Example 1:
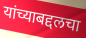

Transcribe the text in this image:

यांच्याबद्दलचा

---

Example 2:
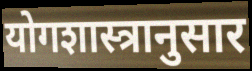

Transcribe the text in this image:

योगशास्त्रानुसार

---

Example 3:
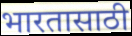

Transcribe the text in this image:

भारतासाठी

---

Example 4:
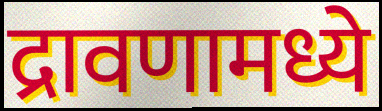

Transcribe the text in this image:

द्रावणामध्ये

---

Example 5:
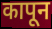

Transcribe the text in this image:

कापून